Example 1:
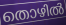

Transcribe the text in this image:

തൊഴിൽ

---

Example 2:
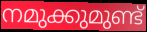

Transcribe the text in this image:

നമുക്കുമുണ്ട്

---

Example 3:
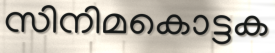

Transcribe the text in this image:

സിനിമകൊട്ടക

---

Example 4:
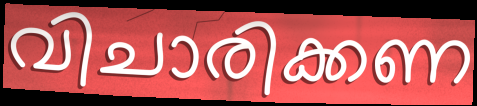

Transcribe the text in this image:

വിചാരിക്കണ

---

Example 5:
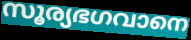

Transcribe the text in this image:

സൂര്യഭഗവാനെ